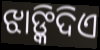
ଝାଙ୍କିଦିଏ